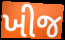
ખીજ